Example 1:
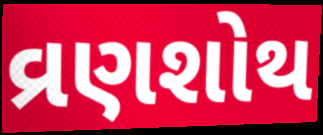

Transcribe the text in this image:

વ્રણશોથ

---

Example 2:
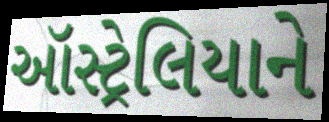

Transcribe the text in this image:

ઑસ્ટ્રેલિયાને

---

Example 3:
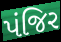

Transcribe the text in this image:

પંજિર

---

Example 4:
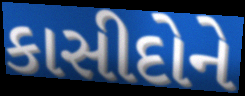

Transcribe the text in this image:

કાસીદોને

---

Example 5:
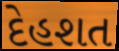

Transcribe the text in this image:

દેહશત